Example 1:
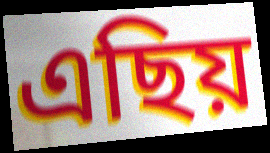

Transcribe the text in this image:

এছিয়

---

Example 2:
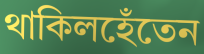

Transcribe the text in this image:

থাকিলহেঁতেন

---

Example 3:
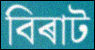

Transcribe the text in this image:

বিৰাট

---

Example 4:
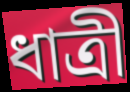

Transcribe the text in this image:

ধাত্ৰী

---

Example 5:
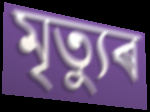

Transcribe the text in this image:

মৃত্যুৰ